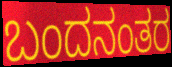
ಬಂದನಂತರ